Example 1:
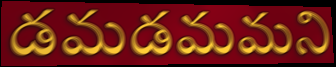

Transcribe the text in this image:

డమడమమని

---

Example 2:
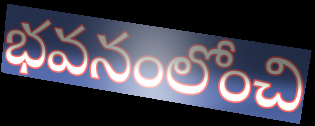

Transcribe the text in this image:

భవనంలోంచి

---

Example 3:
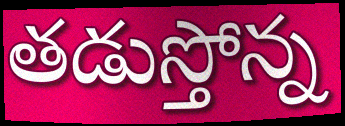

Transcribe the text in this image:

తడుస్తోన్న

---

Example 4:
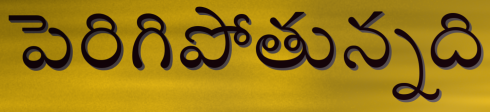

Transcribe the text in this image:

పెరిగిపోతున్నది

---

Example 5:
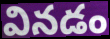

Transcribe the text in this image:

వినడం